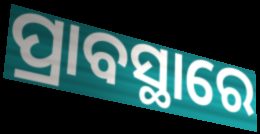
ପ୍ରାବସ୍ଥାରେ